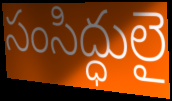
సంసిద్ధులై